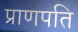
प्राणपति